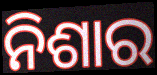
ନିଶାର